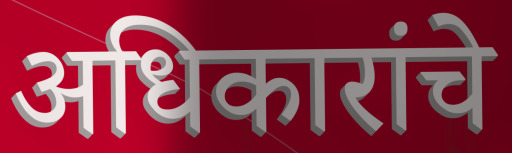
अधिकारांचे